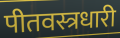
पीतवस्त्रधारी